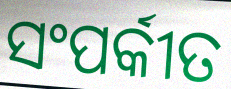
ସଂପର୍କୀତ